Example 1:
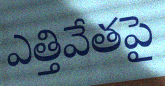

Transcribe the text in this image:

ఎత్తివేతపై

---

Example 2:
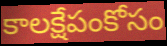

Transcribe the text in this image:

కాలక్షేపంకోసం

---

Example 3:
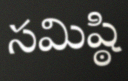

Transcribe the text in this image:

సమిష్ఠి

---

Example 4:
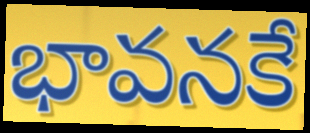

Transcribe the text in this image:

భావనకే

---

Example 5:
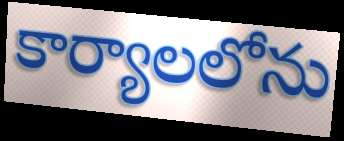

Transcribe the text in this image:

కార్యాలలోను